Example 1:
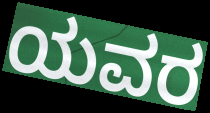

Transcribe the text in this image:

ಯವರ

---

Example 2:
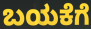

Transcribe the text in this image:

ಬಯಕೆಗೆ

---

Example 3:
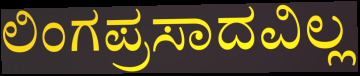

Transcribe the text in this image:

ಲಿಂಗಪ್ರಸಾದವಿಲ್ಲ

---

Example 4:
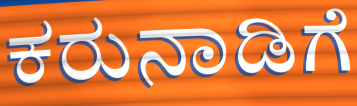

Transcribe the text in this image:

ಕರುನಾಡಿಗೆ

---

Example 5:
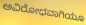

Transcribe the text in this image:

ಅವಿರೋಧವಾಗಿಯೂ